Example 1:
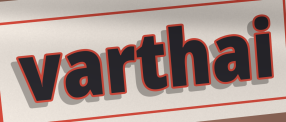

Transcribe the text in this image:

varthai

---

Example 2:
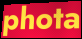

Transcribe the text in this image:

phota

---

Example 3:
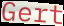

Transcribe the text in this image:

Gert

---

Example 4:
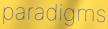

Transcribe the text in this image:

paradigms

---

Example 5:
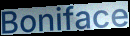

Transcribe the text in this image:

Boniface